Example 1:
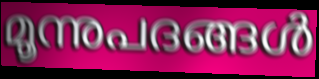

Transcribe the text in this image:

മൂന്നുപദങ്ങൾ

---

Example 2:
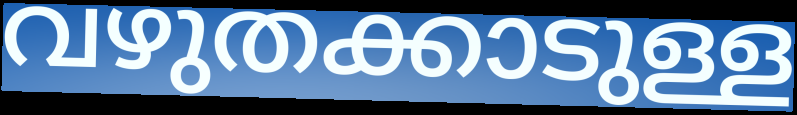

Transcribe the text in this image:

വഴുതക്കാടുള്ള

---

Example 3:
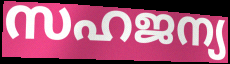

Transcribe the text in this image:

സഹജന്യ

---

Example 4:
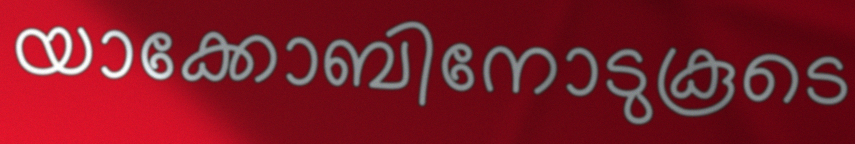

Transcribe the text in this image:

യാക്കോബിനോടുകൂടെ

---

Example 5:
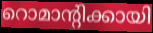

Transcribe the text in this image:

റൊമാന്റിക്കായി